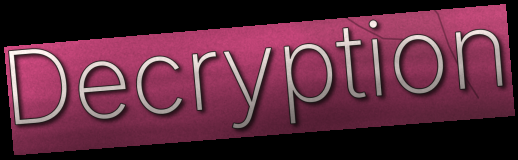
Decryption